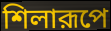
শিলারূপে